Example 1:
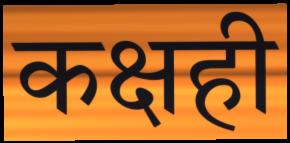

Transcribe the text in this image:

कक्षही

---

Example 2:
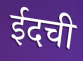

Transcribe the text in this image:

ईदची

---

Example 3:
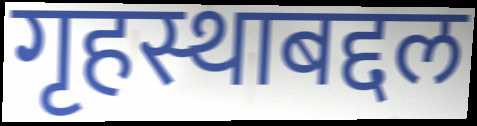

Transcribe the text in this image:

गृहस्थाबद्दल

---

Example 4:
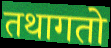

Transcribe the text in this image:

तथागतो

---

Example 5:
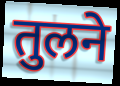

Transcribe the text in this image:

तुलने